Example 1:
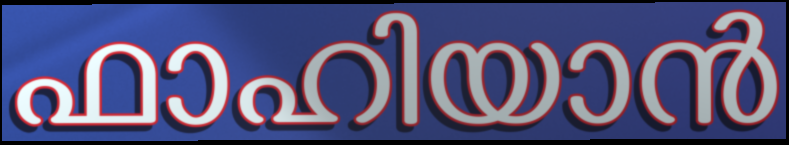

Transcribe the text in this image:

ഫാഹിയാൻ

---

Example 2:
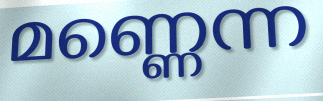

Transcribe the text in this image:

മണ്ണെന്ന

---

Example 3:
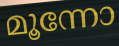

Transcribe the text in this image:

മൂന്നോ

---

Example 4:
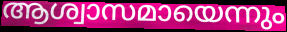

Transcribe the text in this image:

ആശ്വാസമായെന്നും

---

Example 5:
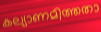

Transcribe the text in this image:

കല്യാണമിത്തതാ